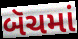
બૅચમાં